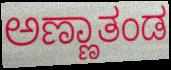
ಅಣ್ಣಾತಂಡ